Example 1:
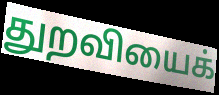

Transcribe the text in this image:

துறவியைக்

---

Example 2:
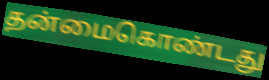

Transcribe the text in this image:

தன்மைகொண்டது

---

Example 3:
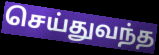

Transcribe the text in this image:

செய்துவந்த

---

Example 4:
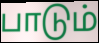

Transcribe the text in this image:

பாடும்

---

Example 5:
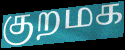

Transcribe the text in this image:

குறமக